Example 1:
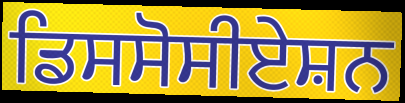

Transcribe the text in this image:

ਡਿਸਸੋਸੀਏਸ਼ਨ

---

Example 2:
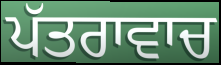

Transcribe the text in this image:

ਪੱਤਰਾਵਾਚ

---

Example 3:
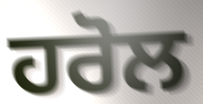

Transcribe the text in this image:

ਹਰੋਲ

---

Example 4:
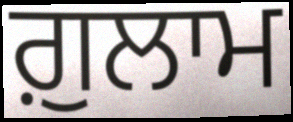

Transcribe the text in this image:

ਗ਼ੁਲਾਮ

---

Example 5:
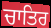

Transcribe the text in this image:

ਚਾਤਿਰ